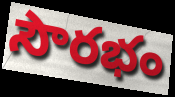
సౌరభం